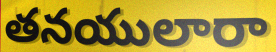
తనయులారా